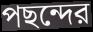
পছন্দের